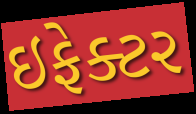
ઇફેક્ટર